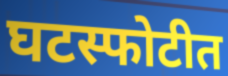
घटस्फोटीत